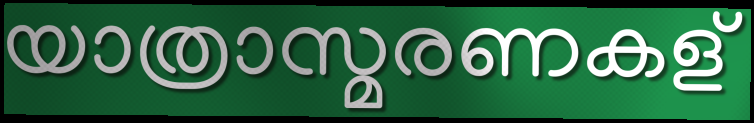
യാത്രാസ്മരണകള്